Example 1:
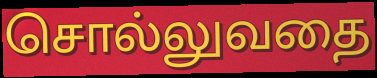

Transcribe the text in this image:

சொல்லுவதை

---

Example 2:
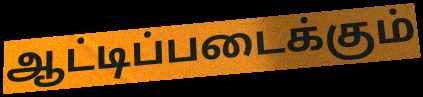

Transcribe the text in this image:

ஆட்டிப்படைக்கும்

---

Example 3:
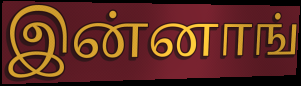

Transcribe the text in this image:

இன்னாங்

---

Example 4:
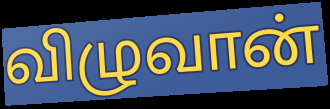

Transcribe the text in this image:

விழுவான்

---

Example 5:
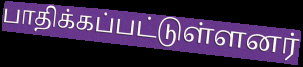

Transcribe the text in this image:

பாதிக்கப்பட்டுள்ளனர்